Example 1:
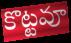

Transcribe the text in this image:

కొట్టవూ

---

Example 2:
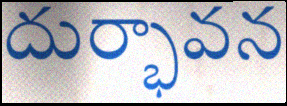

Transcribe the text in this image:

దుర్భావన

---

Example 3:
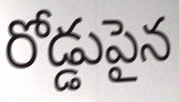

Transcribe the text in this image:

రోడ్డుపైన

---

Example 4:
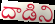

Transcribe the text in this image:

దాడిని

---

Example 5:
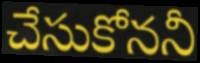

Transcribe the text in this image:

చేసుకోననీ